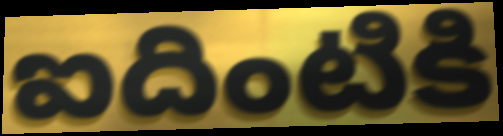
ఐదింటికి